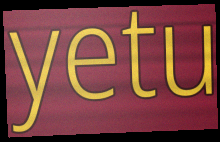
yetu